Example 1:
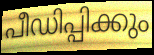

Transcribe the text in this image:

പീഡിപ്പിക്കും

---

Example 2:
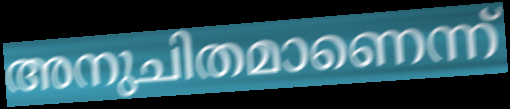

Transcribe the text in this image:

അനുചിതമാണെന്ന്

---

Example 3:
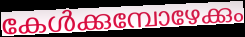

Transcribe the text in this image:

കേൾക്കുമ്പോഴേക്കും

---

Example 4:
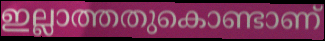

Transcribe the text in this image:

ഇല്ലാത്തതുകൊണ്ടാണ്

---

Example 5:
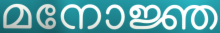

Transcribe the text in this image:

മനോജ്ഞ